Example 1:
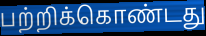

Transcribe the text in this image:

பற்றிக்கொண்டது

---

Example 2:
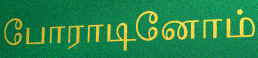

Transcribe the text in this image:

போராடினோம்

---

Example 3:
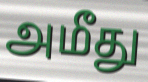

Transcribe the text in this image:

அமீது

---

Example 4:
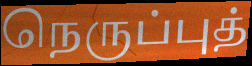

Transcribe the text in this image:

நெருப்புத்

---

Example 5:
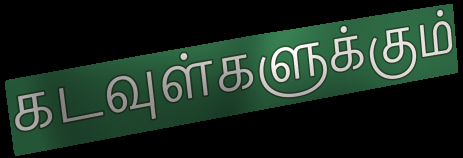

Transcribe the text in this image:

கடவுள்களுக்கும்